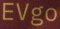
EVgo